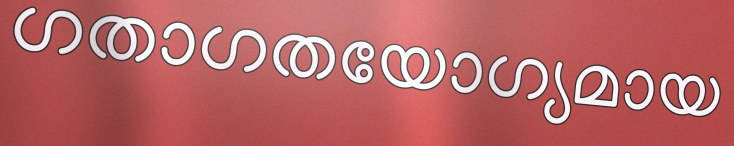
ഗതാഗതയോഗ്യമായ